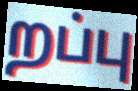
றப்பு